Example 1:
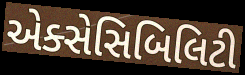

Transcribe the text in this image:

એક્સેસિબિલિટી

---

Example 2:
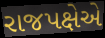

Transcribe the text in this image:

રાજપક્ષેએ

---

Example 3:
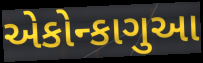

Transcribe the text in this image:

એકોન્કાગુઆ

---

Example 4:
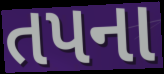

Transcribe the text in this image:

તપના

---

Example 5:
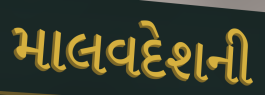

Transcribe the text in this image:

માલવદેશની